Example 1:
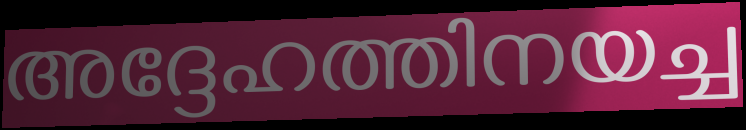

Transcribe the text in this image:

അദ്ദേഹത്തിനയച്ച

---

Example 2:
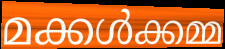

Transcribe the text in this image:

മക്കൾക്കമ്മ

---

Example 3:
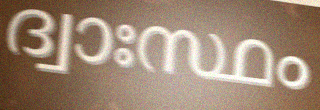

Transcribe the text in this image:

ദ്വാഃസ്ഥം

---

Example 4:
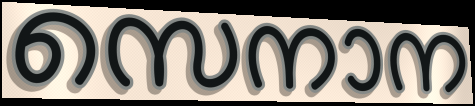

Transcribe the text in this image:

സെനാന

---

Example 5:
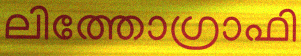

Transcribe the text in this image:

ലിത്തോഗ്രാഫി